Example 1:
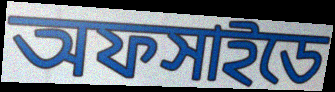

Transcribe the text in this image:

অফসাইডে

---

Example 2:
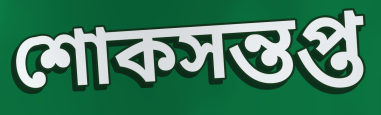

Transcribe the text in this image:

শোকসন্তপ্ত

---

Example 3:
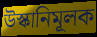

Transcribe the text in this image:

উস্কানিমূলক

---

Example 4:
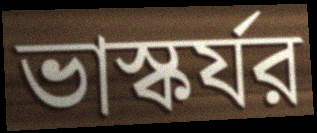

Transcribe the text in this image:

ভাস্কর্যর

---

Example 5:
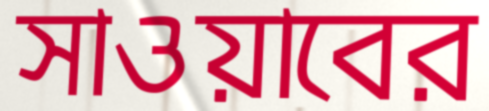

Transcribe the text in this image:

সাওয়াবের